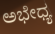
ಅಭೇಧ್ಯ